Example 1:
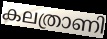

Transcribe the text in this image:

കലത്രാണി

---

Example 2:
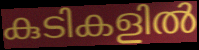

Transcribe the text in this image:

കുടികളിൽ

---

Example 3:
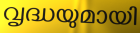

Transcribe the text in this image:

വൃദ്ധയുമായി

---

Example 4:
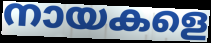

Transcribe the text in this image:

നായകളെ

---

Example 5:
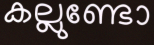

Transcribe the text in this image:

കല്ലുണ്ടോ